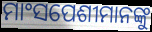
ମାଂସପେଶୀମାନଙ୍କୁ